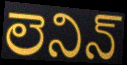
లెనిన్